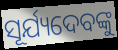
ସୂର୍ଯ୍ୟଦେବଙ୍କୁ